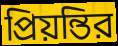
প্রিয়ন্তির